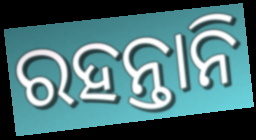
ରହନ୍ତାନି